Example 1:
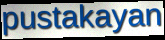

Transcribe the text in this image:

pustakayan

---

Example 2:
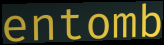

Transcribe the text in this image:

entomb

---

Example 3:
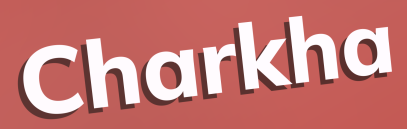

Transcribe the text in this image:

Charkha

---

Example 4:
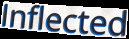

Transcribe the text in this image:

Inflected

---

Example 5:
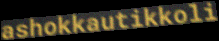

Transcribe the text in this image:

ashokkautikkoli